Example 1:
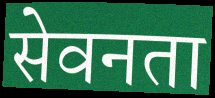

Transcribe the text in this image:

सेवनता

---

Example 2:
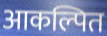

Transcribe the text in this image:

आकल्पित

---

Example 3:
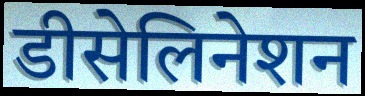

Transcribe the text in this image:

डीसेलिनेशन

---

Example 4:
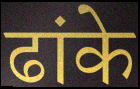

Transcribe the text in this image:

ढांके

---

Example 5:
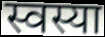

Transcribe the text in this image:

स्वस्या